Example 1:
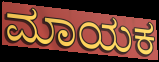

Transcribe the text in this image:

ಮಾಯಕ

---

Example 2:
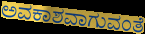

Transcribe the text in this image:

ಅವಕಾಶವಾಗುವಂತೆ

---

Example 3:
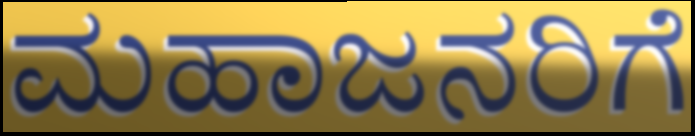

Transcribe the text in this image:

ಮಹಾಜನರಿಗೆ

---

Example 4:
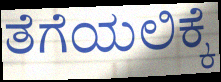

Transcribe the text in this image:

ತೆಗೆಯಲಿಕ್ಕೆ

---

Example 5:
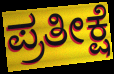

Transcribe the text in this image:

ಪ್ರತೀಕ್ಷೆ